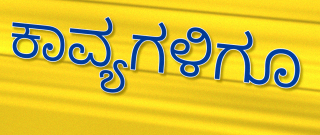
ಕಾವ್ಯಗಳಿಗೂ